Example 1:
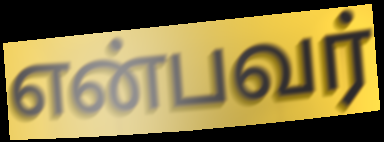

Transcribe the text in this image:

என்பவர்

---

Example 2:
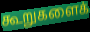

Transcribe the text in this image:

கூறுகளைக்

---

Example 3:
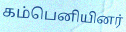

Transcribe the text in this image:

கம்பெனியினர்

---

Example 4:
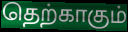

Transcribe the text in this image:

தெற்காகும்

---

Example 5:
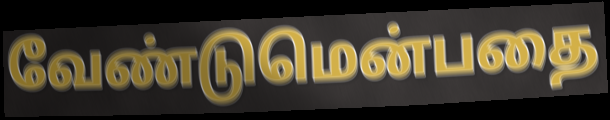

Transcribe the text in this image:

வேண்டுமென்பதை